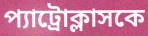
প্যাট্রোক্লাসকে